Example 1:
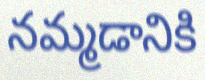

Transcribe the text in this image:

నమ్మడానికి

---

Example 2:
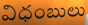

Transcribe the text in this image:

విధంబులు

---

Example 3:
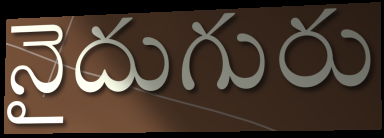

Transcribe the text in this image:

నైదుగురు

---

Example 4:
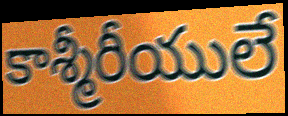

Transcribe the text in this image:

కాశ్మీరీయులే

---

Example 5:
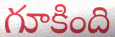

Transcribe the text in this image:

గూకింది